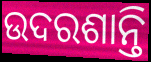
ଉଦରଶାନ୍ତି